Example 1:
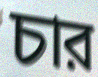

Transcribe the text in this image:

চার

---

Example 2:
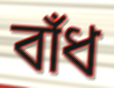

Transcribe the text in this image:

বাঁধ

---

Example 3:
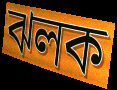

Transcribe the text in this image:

ঝলক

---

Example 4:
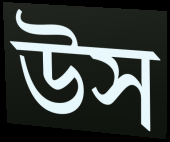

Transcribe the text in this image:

উস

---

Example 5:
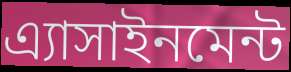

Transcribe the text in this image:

এ্যাসাইনমেন্ট